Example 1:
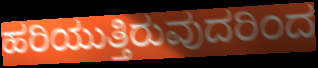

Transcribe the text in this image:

ಹರಿಯುತ್ತಿರುವುದರಿಂದ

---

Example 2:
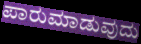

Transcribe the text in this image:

ಪಾರುಮಾಡುವುದು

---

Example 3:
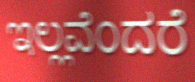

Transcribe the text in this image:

ಇಲ್ಲವೆಂದರೆ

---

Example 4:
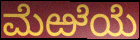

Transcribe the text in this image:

ಮೆಱೆಯೆ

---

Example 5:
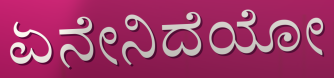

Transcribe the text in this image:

ಏನೇನಿದೆಯೋ